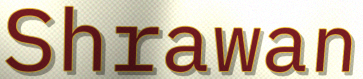
Shrawan